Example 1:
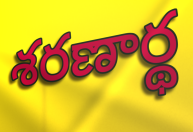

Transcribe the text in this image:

శరణార్థ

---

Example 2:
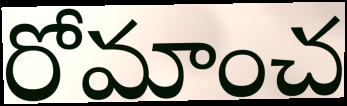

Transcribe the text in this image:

రోమాంచ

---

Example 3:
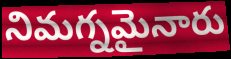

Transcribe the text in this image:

నిమగ్నమైనారు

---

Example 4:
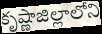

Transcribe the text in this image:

కృష్ణాజిల్లాలోని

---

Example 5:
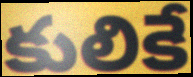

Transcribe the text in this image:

కులికే